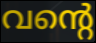
വന്റെ